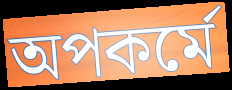
অপকর্মে